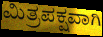
ಮಿತ್ರಪಕ್ಷವಾಗಿ